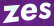
zes